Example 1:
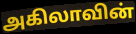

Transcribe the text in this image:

அகிலாவின்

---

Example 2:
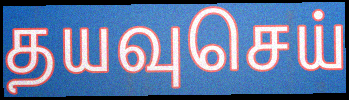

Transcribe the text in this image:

தயவுசெய்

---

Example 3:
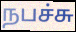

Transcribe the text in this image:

நபச்சு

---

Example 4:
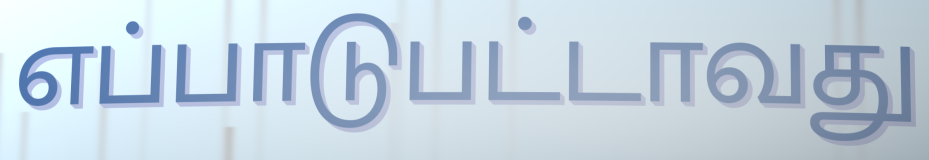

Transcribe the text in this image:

எப்பாடுபட்டாவது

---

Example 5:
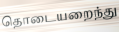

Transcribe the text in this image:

தொடையறைந்து